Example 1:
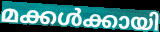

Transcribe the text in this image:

മക്കൾക്കായി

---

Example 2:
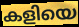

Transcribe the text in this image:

കളിയെ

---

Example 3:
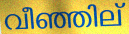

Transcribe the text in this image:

വീഞ്ഞില്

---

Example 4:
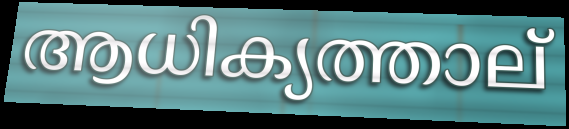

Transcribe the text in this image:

ആധിക്യത്താല്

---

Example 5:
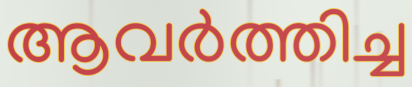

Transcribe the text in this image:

ആവർത്തിച്ച